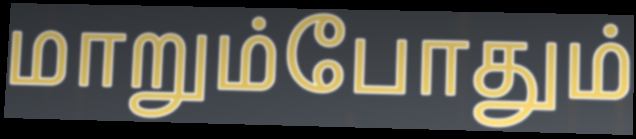
மாறும்போதும்